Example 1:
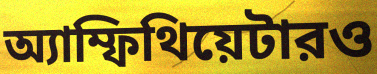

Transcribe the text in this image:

অ্যাম্ফিথিয়েটারও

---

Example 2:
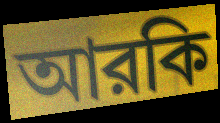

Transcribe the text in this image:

আরকি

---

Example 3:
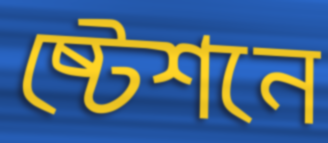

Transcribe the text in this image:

ষ্টেশনে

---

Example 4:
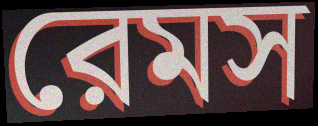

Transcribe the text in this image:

রেমস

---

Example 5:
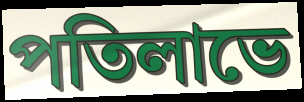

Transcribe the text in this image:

পতিলাভে